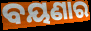
ବୟଣାର